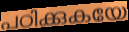
പഠിക്കുകയേ